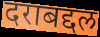
दराबद्दल